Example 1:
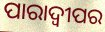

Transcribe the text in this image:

ପାରାଦ୍ବୀପର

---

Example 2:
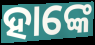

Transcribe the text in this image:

ହାଙ୍କେ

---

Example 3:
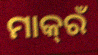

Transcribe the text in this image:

ମାକ୍‌ରଁ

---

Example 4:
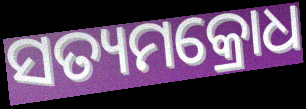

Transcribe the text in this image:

ସତ୍ୟମକ୍ରୋଧ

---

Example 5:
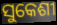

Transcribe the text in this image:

ସୁକେଶୀ